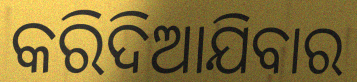
କରିଦିଆଯିବାର